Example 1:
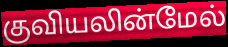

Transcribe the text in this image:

குவியலின்மேல்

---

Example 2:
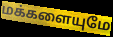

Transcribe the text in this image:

மக்களையுமே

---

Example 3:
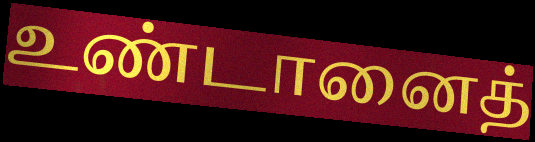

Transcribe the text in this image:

உண்டானைத்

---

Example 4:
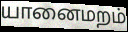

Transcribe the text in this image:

யானைமறம்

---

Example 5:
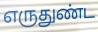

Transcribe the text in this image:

எருதுண்ட